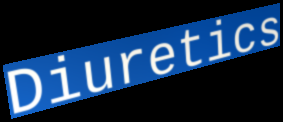
Diuretics